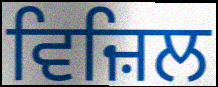
ਵਿਜ਼ਿਲ